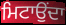
ਮਿਟਾਉਂਦਾ